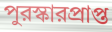
পুরস্কারপ্রাপ্ত